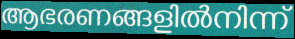
ആഭരണങ്ങളിൽനിന്ന്